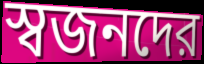
স্বজনদের